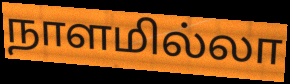
நாளமில்லா